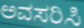
ಅವಸರಿಸಿ